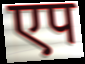
एप